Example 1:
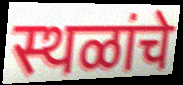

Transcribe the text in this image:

स्थळांचे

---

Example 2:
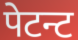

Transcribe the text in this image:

पेटन्ट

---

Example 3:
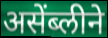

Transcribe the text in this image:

असेंब्लीने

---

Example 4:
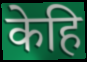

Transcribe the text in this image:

केहि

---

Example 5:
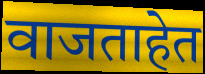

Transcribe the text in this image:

वाजताहेत